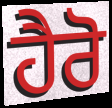
ਹੈਰੋ